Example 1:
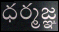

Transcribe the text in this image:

ధర్మజ్ఞ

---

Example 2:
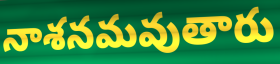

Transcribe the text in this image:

నాశనమవుతారు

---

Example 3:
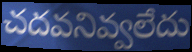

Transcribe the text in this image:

చదవనివ్వలేదు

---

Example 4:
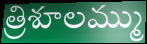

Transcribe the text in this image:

త్రిశూలమ్ము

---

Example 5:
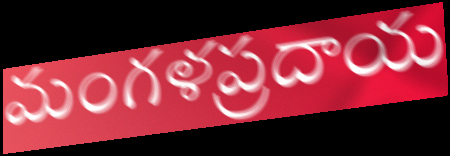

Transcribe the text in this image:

మంగళప్రదాయ